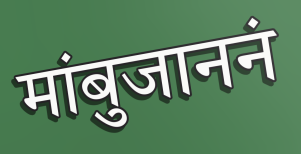
मांबुजाननं